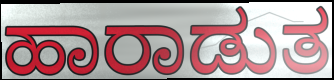
ಹಾರಾಡುತ